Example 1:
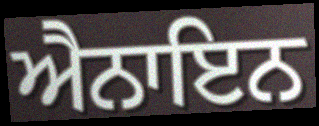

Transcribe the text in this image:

ਐਨਾਇਨ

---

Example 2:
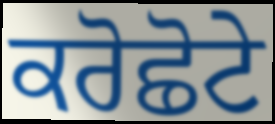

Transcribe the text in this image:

ਕਰੋਛੋਟੇ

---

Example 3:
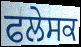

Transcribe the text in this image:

ਫਲੇਸਕ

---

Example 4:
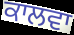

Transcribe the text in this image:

ਕਾਲਵਾ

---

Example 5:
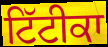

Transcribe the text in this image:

ਟਿੱਟੀਕਾ